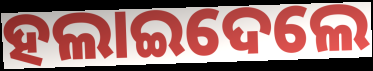
ହଲାଇଦେଲେ